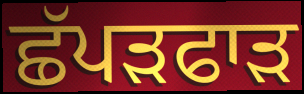
ਛੱਪੜਫਾੜ